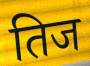
तिज